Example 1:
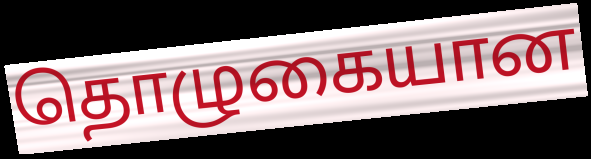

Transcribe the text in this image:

தொழுகையான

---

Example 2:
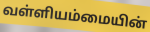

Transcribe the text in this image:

வள்ளியம்மையின்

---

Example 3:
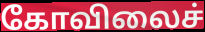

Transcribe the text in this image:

கோவிலைச்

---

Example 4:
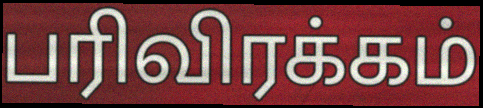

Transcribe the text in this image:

பரிவிரக்கம்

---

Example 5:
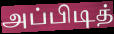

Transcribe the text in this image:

அப்பிடித்